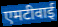
एमटीवाई